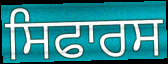
ਸਿਫਾਰਸ